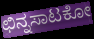
ಛಿನ್ನಸಾಟಕೋ